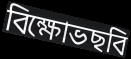
বিক্ষোভছবি